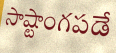
సాష్టాంగపడే